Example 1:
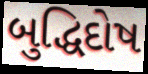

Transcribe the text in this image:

બુદ્ધિદોષ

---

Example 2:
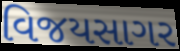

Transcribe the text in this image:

વિજયસાગર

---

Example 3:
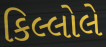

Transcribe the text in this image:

કિલ્લોલે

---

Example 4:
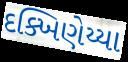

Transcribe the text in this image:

દક્ખિણેય્યા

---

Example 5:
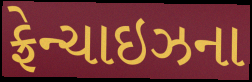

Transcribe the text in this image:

ફ્રેન્ચાઇઝના